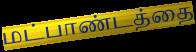
மட்பாண்டத்தை